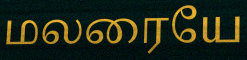
மலரையே